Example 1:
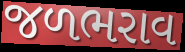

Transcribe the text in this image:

જળભરાવ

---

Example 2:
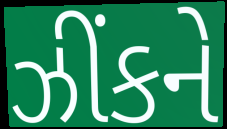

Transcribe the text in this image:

ઝીંકને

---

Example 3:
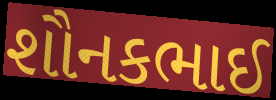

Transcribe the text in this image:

શૌનકભાઈ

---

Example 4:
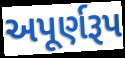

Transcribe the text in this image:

અપૂર્ણરૂપ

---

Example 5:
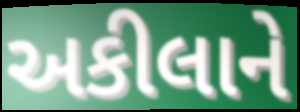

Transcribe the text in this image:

અકીલાને